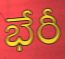
భేరీ